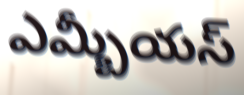
ఎమ్బీయస్